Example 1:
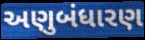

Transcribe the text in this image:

અણુબંધારણ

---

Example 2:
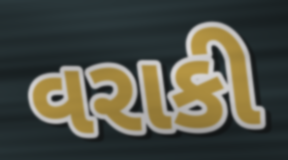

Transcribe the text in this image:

વરાકી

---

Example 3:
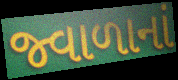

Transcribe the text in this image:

જ્વાળાનાં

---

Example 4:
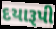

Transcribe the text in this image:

દયારૂપી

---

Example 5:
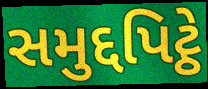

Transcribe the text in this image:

સમુદ્દપિટ્ઠે